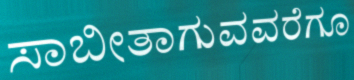
ಸಾಬೀತಾಗುವವರೆಗೂ